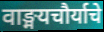
वाङ्मयचौर्याचे